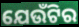
ଯେଉଁଟିର